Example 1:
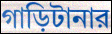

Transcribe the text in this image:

গাড়িটানার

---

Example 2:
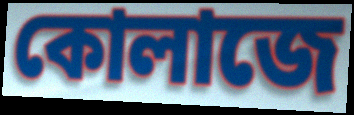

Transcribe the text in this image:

কোলাজে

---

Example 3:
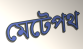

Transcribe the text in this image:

মেটেপথ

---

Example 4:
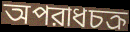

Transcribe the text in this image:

অপরাধচক্র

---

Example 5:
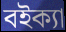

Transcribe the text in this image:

বইক্যা